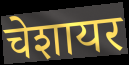
चेशायर